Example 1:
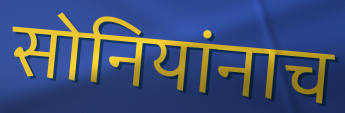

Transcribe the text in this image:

सोनियांनाच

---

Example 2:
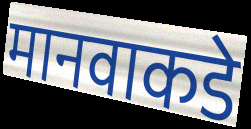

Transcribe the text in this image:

मानवाकडे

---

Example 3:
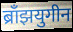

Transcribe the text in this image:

ब्राँझयुगीन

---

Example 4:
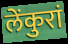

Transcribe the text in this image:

लेंकुरां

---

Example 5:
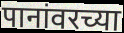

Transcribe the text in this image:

पानांवरच्या